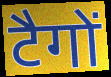
टैगों